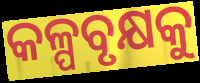
କଳ୍ପବୃକ୍ଷକୁ